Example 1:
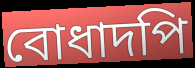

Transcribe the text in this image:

বোধাদপি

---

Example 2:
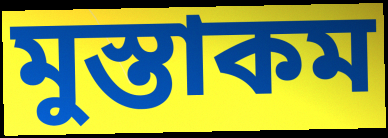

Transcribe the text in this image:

মুস্তাকম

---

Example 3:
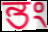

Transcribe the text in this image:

ন্তং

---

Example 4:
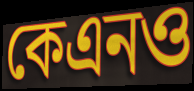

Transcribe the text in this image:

কেএনও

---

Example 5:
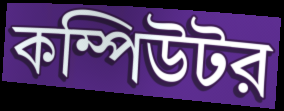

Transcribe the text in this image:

কম্পিউটর